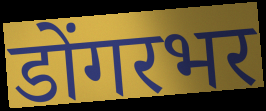
डोंगरभर